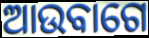
ଆଉବାଗେ